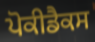
ਪੋਕੀਡੈਕਸ